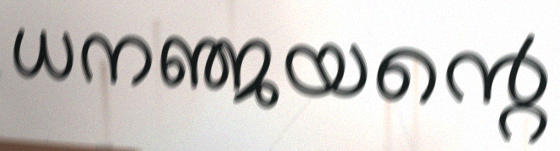
ധനഞ്ജയന്റെ